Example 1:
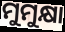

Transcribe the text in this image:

ମୁମୁକ୍ଷା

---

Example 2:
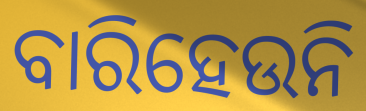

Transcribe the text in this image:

ବାରିହେଉନି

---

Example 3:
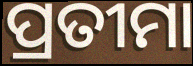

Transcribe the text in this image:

ପ୍ରତୀମା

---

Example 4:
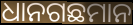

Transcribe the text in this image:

ଧାନଗଛମାନ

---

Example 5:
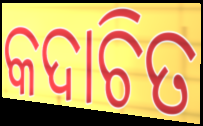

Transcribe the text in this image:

କଦାଚିତ